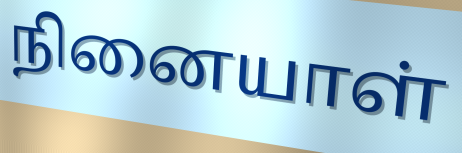
நினையாள்